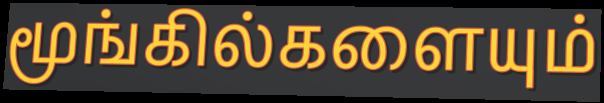
மூங்கில்களையும்